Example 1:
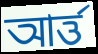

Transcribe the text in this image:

আৰ্ত্ত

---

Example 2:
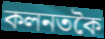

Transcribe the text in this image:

কলনতকৈ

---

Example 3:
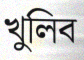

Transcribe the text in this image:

খুলিব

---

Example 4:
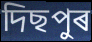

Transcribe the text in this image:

দিছপুৰ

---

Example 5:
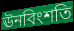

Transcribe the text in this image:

ঊনবিংশতি